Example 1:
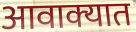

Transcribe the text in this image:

आवाक्‍यात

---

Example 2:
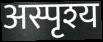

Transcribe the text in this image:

अस्पृश्य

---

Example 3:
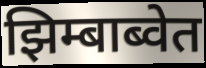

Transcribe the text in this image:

झिम्बाब्वेत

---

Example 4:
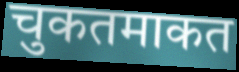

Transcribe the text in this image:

चुकतमाकत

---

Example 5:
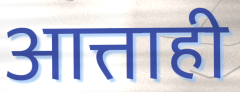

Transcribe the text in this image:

आत्ताही